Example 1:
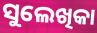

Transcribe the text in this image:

ସୁଲେଖିକା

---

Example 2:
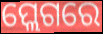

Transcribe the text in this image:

ପ୍ଲେଗରେ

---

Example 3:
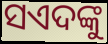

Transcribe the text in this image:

ସଏଦଙ୍କୁ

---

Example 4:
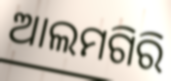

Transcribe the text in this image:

ଆଲମଗିରି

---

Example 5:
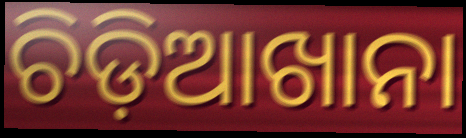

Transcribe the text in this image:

ଚିଡ଼ିଆଖାନା